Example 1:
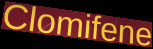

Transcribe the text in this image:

Clomifene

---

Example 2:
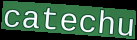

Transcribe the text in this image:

catechu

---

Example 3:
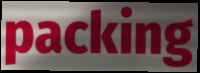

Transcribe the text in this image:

packing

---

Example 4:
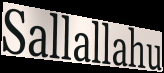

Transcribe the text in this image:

Sallallahu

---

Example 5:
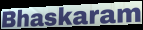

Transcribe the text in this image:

Bhaskaram